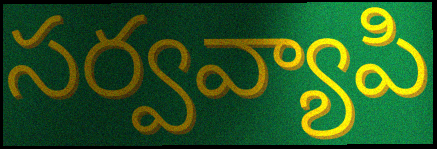
సర్వవ్యాపి